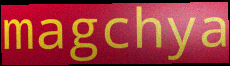
magchya